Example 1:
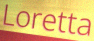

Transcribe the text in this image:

Loretta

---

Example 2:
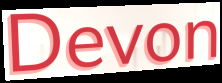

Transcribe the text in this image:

Devon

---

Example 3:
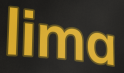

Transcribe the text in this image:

lima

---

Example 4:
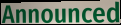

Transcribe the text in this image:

Announced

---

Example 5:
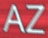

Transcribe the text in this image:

AZ